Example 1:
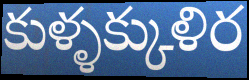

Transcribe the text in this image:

కుళ్ళక్కుళిర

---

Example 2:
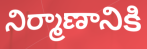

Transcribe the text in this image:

నిర్మాణానికి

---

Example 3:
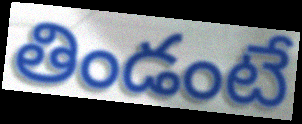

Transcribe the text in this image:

తిండంటే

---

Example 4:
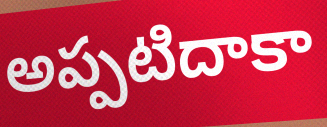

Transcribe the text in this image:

అప్పటిదాకా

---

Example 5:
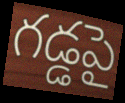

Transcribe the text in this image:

గడ్డపై